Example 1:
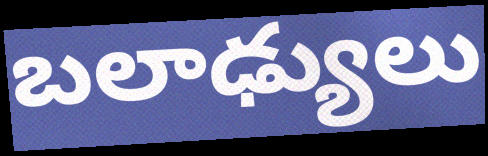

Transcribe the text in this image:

బలాఢ్యులు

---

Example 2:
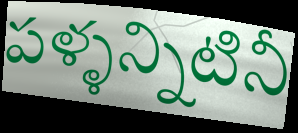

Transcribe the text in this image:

పళ్ళన్నిటినీ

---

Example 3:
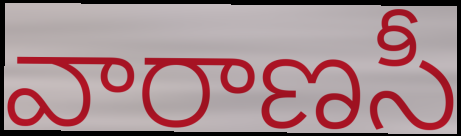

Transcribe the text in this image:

వారాణసీ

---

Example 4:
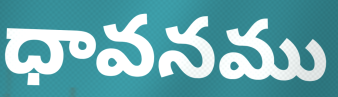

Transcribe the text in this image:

ధావనము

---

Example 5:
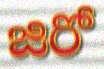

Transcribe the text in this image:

జిరో